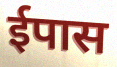
ईपास